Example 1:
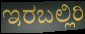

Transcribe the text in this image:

ಇರಬಲ್ಲಿರಿ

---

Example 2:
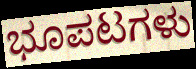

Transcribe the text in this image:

ಭೂಪಟಗಳು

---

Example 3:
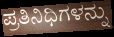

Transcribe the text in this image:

ಪ್ರತಿನಿಧಿಗಳನ್ನು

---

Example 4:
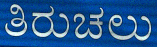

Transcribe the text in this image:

ತಿರುಚಲು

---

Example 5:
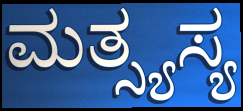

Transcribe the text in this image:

ಮತ್ಸ್ಯಸ್ಯ